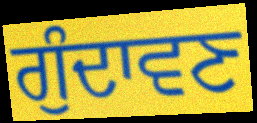
ਗੁੰਦਾਵਣ